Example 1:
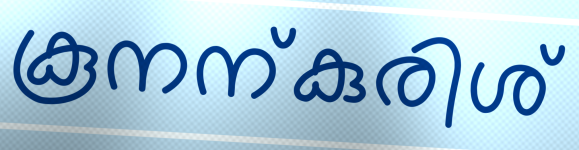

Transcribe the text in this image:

കൂനന്കുരിശ്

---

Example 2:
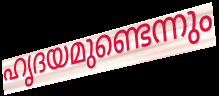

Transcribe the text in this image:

ഹൃദയമുണ്ടെന്നും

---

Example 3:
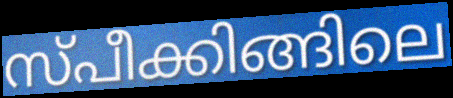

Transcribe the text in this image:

സ്പീക്കിങ്ങിലെ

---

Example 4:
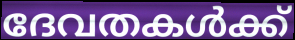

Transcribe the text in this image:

ദേവതകൾക്ക്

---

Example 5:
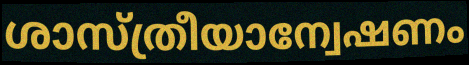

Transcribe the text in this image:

ശാസ്ത്രീയാന്വേഷണം